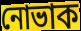
নোভাক